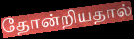
தோன்றியதால்